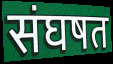
संघषत